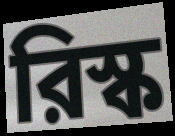
রিস্ক